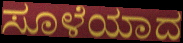
ಸೂಳೆಯಾದ